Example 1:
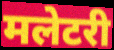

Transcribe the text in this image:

मलेटरी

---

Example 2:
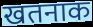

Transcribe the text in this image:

खतनाक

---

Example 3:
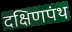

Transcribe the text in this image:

दक्षिणपंथ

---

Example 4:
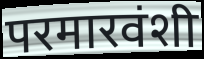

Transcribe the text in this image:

परमारवंशी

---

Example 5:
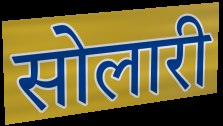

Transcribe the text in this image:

सोलारी